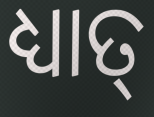
ଧ୍ୟାତ୍